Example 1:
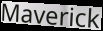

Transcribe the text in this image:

Maverick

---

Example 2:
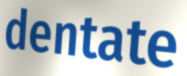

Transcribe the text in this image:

dentate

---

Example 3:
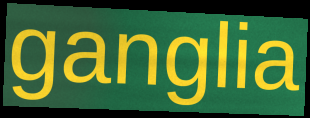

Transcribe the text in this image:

ganglia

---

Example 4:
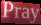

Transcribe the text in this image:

Pray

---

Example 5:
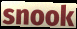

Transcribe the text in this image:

snook